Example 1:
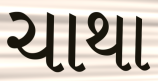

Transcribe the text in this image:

ચાથા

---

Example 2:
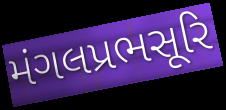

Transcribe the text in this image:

મંગલપ્રભસૂરિ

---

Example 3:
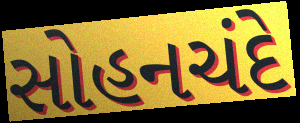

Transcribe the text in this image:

સોહનચંદે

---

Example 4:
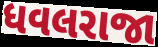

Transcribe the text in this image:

ધવલરાજા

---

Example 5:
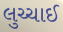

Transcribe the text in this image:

લુચ્ચાઈ